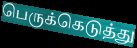
பெருக்கெடுத்து